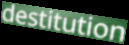
destitution